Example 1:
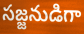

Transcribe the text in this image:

సజ్జనుడిగా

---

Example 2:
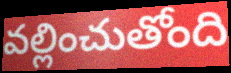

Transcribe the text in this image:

వల్లించుతోంది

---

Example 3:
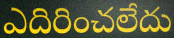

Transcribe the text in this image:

ఎదిరించలేదు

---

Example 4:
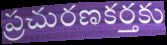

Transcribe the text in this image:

ప్రచురణకర్తకు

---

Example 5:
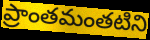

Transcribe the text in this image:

ప్రాంతమంతటిని